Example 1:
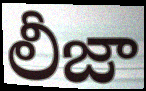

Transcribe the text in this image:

లీజా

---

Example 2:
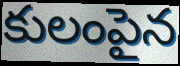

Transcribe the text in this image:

కులంపైన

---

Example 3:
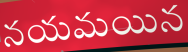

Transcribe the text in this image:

నయమయిన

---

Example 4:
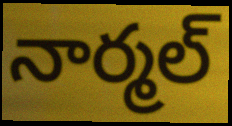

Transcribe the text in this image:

నార్మల్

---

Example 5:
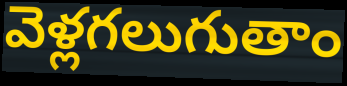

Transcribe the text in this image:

వెళ్లగలుగుతాం